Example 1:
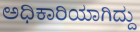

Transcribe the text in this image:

ಅಧಿಕಾರಿಯಾಗಿದ್ದು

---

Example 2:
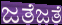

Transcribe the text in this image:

ಜತೆಜತೆ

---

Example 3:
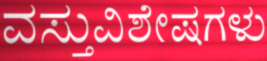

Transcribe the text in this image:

ವಸ್ತುವಿಶೇಷಗಳು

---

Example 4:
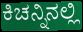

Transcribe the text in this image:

ಕಿಚನ್ನಿನಲ್ಲಿ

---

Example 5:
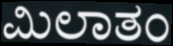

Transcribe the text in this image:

ಮಿಲಾತಂ